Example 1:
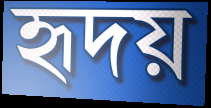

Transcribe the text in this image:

হৃদয়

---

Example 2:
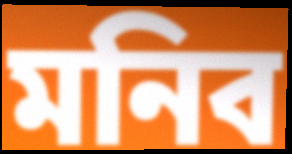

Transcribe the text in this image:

মনিব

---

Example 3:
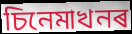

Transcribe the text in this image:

চিনেমাখনৰ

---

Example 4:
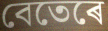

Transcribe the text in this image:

বেতেৰে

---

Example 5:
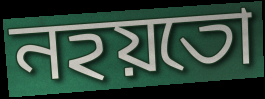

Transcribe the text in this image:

নহয়তো